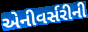
એનીવર્સરીની